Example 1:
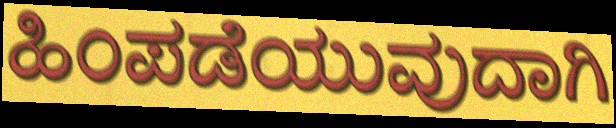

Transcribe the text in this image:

ಹಿಂಪಡೆಯುವುದಾಗಿ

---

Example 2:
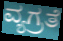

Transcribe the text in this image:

ವ್ಯಗ್ರತೆ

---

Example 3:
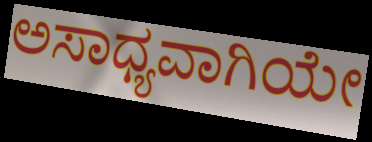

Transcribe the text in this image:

ಅಸಾಧ್ಯವಾಗಿಯೇ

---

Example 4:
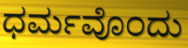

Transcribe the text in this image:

ಧರ್ಮವೊಂದು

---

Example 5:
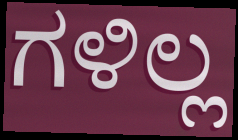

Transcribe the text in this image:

ಗಳಿಲ್ಲ